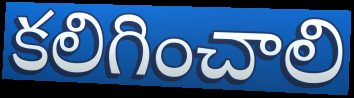
కలిగించాలి